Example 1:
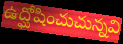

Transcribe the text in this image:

ఉద్ఘోషించుచున్నవి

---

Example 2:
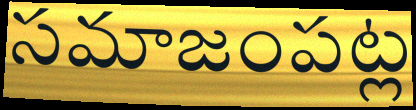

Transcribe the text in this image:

సమాజంపట్ల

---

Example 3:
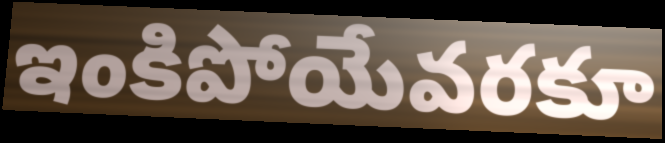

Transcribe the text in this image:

ఇంకిపోయేవరకూ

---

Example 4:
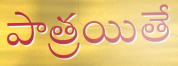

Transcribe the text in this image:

పాత్రయితే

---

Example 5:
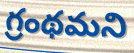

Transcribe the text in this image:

గ్రంథమని